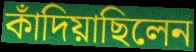
কাঁদিয়াছিলেন